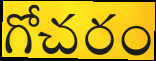
గోచరం